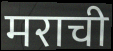
मराची